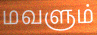
மவளும்